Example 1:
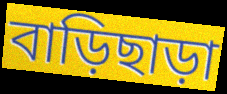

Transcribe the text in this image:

বাড়িছাড়া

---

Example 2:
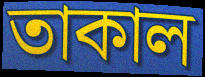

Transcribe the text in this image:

তাকাল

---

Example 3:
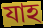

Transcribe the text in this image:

যাহ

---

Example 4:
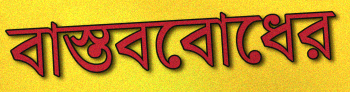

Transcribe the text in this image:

বাস্তববোধের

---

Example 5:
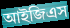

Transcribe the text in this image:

আইজিএস